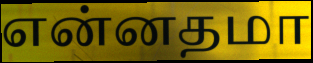
என்னதமா